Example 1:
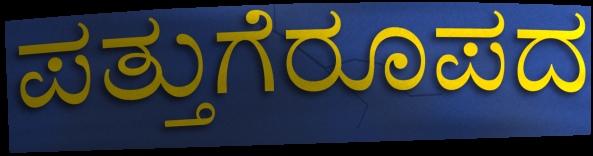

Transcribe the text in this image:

ಪತ್ತುಗೆರೂಪದ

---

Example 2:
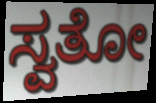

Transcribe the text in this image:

ಸ್ವತೋ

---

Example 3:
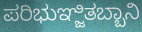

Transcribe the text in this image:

ಪರಿಭುಞ್ಜಿತಬ್ಬಾನಿ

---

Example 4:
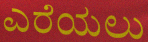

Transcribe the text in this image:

ಎರೆಯಲು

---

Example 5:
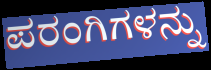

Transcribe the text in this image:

ಪರಂಗಿಗಳನ್ನು